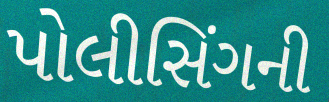
પોલીસિંગની